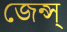
জেন্স্